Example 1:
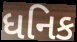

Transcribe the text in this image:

ધનિક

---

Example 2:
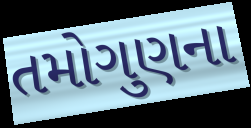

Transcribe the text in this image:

તમોગુણના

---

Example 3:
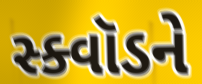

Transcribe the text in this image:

સ્ક્વૉડને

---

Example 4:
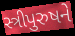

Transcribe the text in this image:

સ્ત્રીપુરુષને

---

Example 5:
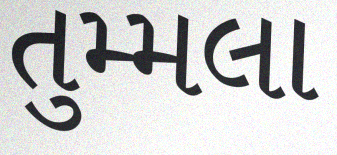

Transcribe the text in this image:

તુમ્મલા